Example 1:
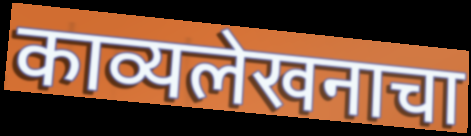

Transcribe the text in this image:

काव्यलेखनाचा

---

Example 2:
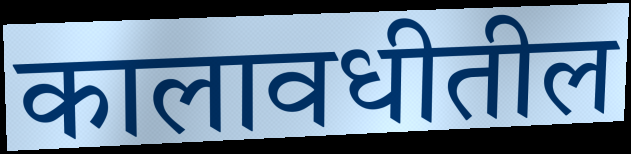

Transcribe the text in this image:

कालावधीतील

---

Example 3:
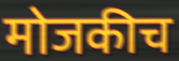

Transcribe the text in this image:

मोजकीच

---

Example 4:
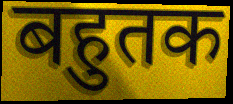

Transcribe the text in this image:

बहुतक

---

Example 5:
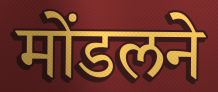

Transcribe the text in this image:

मोंडलने